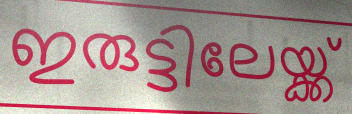
ഇരുട്ടിലേയ്ക്ക്